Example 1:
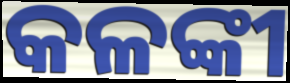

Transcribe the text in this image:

କଳଙ୍କୀ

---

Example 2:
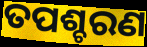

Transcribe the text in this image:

ତପଶ୍ଚରଣ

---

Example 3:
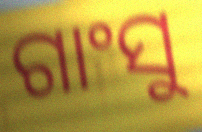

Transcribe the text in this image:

ଗାଂସୁ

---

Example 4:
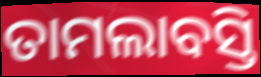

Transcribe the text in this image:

ତାମଲାବସ୍ତି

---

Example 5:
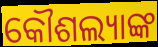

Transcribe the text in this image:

କୌଶଲ୍ୟାଙ୍କ